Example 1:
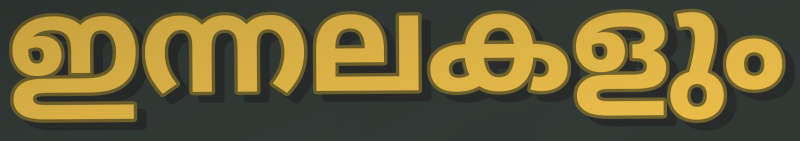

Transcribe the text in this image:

ഇന്നലകളും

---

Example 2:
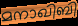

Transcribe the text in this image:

മനാഖിബി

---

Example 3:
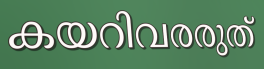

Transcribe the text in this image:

കയറിവരരുത്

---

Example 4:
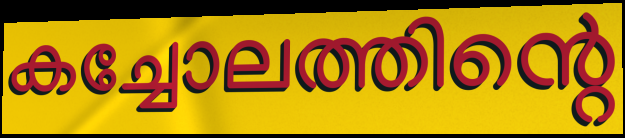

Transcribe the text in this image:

കച്ചോലത്തിന്റെ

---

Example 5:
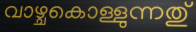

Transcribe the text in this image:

വാഴ്ചകൊള്ളുന്നതു്